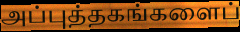
அப்புத்தகங்களைப்